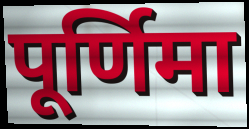
पूर्णिमा